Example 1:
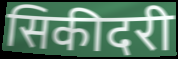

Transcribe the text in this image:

सिकीदरी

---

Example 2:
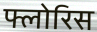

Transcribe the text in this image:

फ्लोरिस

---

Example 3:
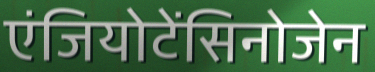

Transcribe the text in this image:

एंजियोटेंसिनोजेन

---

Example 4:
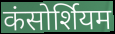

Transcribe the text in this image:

कंसोर्शियम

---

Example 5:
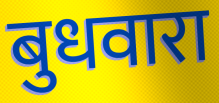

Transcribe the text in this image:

बुधवारा